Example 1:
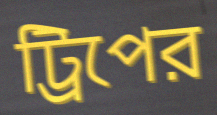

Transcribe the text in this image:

ট্রিপের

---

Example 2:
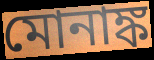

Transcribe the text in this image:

মোনাঙ্ক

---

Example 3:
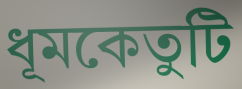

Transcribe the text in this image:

ধূমকেতুটি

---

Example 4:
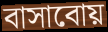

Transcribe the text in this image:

বাসাবোয়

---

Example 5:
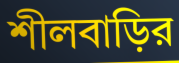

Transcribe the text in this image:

শীলবাড়ির